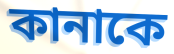
কানাকে